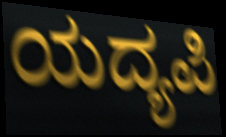
ಯದ್ಯಪಿ